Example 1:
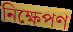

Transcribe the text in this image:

নিক্ষেপণ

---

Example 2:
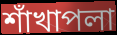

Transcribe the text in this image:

শাঁখাপলা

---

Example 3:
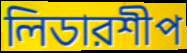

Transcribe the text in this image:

লিডারশীপ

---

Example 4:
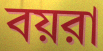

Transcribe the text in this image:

বয়রা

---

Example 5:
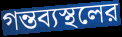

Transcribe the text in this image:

গন্তব্যস্থলের